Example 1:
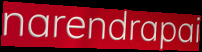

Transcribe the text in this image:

narendrapai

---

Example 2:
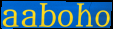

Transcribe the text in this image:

aaboho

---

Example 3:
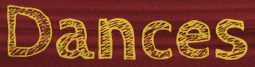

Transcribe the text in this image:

Dances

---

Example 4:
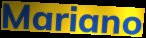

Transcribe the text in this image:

Mariano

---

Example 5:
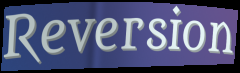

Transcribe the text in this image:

Reversion